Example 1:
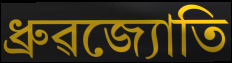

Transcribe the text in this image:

ধ্ৰুৱজ্যোতি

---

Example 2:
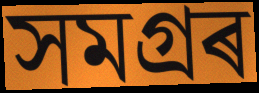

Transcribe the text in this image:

সমগ্ৰৰ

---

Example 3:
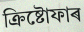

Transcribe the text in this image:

ক্ৰিষ্টোফাৰ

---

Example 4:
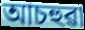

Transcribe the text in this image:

আচহুৱা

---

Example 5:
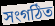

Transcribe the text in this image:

সংগঠিত